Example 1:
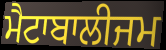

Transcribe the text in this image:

ਮੈਟਾਬਾਲੀਜਮ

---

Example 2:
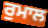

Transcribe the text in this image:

ਰੁਮਾਲ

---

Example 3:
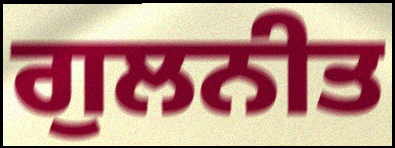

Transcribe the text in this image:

ਗੁਲਨੀਤ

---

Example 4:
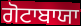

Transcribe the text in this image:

ਗੋਟਾਬਾਯਾ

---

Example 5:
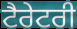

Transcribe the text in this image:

ਟੈਰੇਟਰੀ